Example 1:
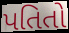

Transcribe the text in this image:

પતિતો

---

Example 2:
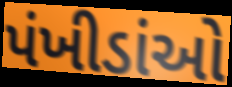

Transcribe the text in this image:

પંખીડાંઓ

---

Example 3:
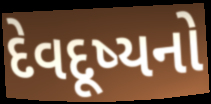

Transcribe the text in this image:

દેવદૂષ્યનો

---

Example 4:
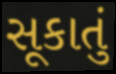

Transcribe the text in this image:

સૂકાતું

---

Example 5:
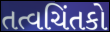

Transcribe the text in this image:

તત્વચિંતકો